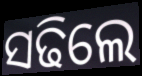
ସଢିଲେ